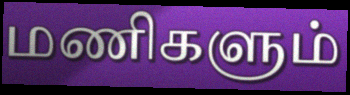
மணிகளும்